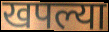
खपल्या